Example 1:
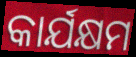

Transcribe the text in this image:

କାର୍ଯକ୍ଷମ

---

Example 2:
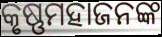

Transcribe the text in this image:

କୃଷ୍ଣମହାଜନଙ୍କ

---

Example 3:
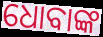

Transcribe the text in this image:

ଧୋବାଙ୍କ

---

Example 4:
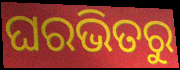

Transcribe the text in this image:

ଘରଭିତରୁ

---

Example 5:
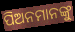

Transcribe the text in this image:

ପିଅନମାନଙ୍କୁ